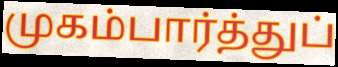
முகம்பார்த்துப்